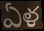
ఏళ